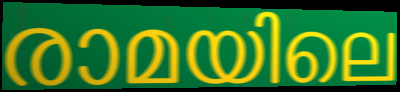
രാമയിലെ